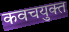
कवचयुक्त